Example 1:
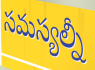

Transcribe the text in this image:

సమస్యల్నీ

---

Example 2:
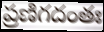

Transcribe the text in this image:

ప్రణిగదంతః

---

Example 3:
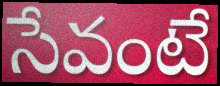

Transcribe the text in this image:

సేవంటే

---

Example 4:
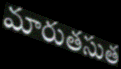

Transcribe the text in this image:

మారుతసుత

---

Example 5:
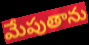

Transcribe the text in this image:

మేపుతాను